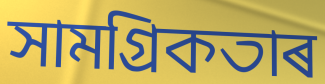
সামগ্ৰিকতাৰ